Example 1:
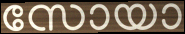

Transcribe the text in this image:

സോയാ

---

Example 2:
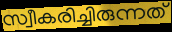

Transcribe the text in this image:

സ്വീകരിച്ചിരുന്നത്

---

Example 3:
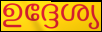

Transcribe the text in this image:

ഉദ്ദേശ്യ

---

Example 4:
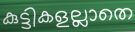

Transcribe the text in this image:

കുട്ടികളല്ലാതെ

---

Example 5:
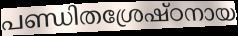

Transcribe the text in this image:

പണ്ഡിതശ്രേഷ്ഠനായ